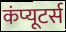
कंप्यूटर्स